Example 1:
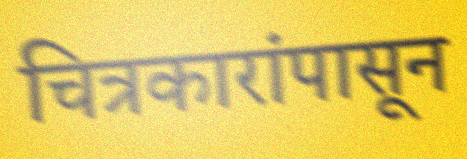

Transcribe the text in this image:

चित्रकारांपासून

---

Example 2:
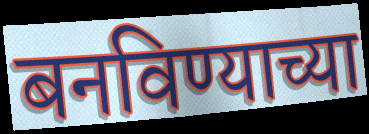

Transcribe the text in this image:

बनविण्याच्या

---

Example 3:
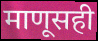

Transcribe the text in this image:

माणूसही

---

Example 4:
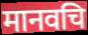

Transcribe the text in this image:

मानवचि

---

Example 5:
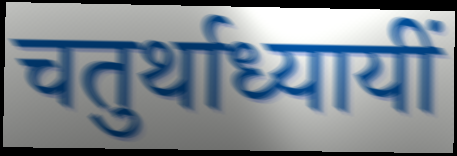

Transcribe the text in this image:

चतुर्थाध्यायीं